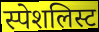
स्पेशलिस्ट